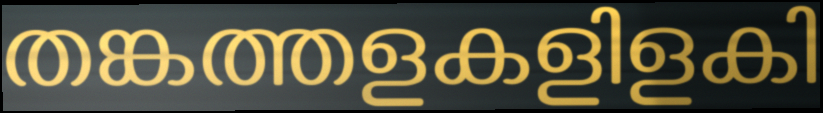
തങ്കത്തളകളിളകി